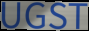
UGST